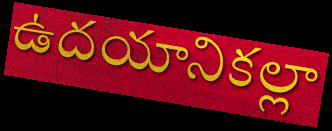
ఉదయానికల్లా